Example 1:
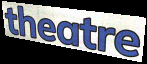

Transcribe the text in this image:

theatre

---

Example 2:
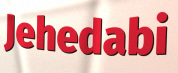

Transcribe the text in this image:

Jehedabi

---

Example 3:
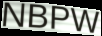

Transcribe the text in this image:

NBPW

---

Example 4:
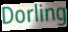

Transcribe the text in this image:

Dorling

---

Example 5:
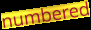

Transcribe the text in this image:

numbered